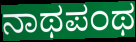
ನಾಥಪಂಥ